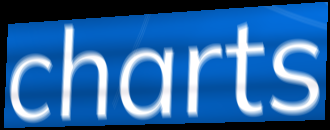
charts